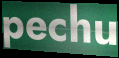
pechu